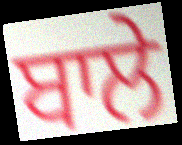
ਬਾਲੇ